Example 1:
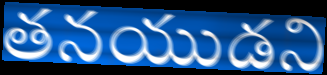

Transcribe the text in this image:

తనయుడని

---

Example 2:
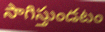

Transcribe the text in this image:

సాగిస్తుండటం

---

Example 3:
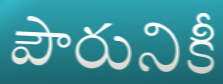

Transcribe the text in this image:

పౌరునికీ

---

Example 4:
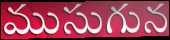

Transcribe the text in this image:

ముసుగున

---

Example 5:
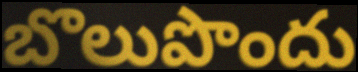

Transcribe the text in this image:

బొలుపొందు